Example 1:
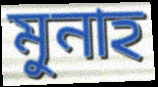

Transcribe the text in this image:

মুনাহ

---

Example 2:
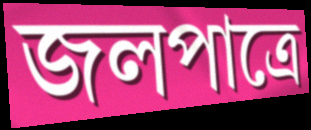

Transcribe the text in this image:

জলপাত্রে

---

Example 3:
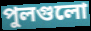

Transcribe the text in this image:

পুলগুলো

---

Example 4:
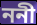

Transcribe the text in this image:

ননী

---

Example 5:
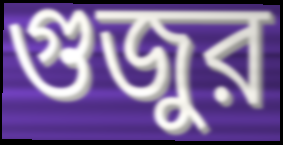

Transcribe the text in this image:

গুজুর